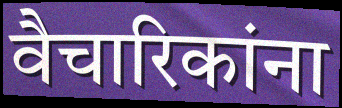
वैचारिकांना